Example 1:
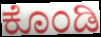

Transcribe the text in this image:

ಕೊಂಡಿ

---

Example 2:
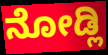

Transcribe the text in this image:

ನೋಡ್ಲಿ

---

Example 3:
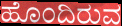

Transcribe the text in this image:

ಹೊಂದಿರುವ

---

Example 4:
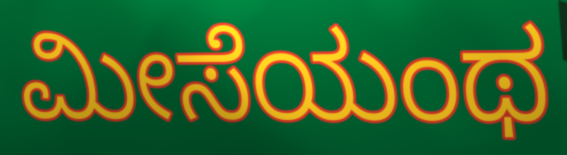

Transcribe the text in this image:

ಮೀಸೆಯಂಥ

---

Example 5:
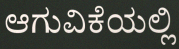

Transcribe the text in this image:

ಆಗುವಿಕೆಯಲ್ಲಿ